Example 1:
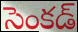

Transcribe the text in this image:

సెంకడ్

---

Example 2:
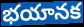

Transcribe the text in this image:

భయానక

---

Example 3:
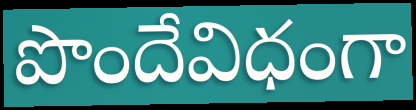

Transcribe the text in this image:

పొందేవిధంగా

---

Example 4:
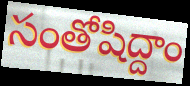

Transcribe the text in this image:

సంతోషిద్దాం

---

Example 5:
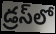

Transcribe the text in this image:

డ్రస్‌లో